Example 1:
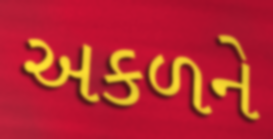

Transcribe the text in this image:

અકળને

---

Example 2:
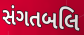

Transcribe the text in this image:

સંગતબલિ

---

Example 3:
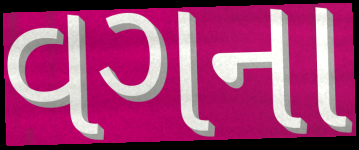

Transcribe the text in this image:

વગના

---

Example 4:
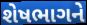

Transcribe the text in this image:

શેષભાગને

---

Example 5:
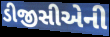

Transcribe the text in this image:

ડીજીસીએની